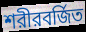
শরীরবর্জিত